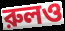
রুলও